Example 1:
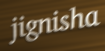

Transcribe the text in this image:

jignisha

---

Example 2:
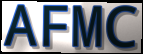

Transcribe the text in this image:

AFMC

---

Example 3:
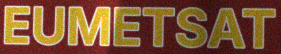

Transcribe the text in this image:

EUMETSAT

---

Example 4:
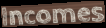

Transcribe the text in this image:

Incomes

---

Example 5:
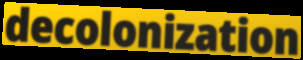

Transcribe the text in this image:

decolonization